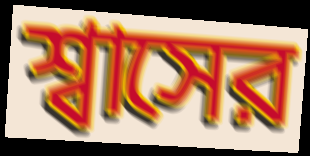
শ্বাসের